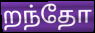
றந்தோ